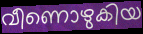
വീണൊഴുകിയ